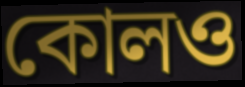
কোলও